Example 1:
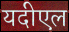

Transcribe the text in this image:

यदीएल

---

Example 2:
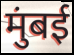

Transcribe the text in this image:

मुंबई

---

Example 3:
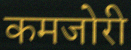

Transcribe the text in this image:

कमजोरी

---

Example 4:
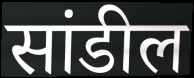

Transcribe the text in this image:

सांडील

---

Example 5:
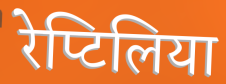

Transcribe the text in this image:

रेप्टिलिया